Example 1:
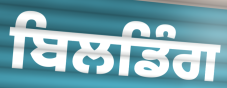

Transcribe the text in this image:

ਬਿਲਡਿੰਗ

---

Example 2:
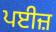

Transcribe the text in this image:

ਪਈਜ਼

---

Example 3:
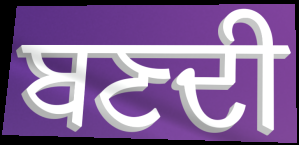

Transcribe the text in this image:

ਬਣਦੀ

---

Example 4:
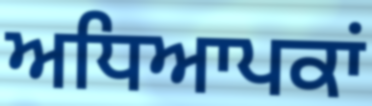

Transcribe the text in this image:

ਅਧਿਆਪਕਾਂ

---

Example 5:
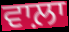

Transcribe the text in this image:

ਵਾਲ਼ਾ